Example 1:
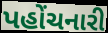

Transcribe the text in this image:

પહોંચનારી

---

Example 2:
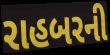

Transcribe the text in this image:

રાહબરની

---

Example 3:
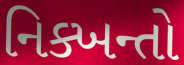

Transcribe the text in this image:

નિક્ખન્તો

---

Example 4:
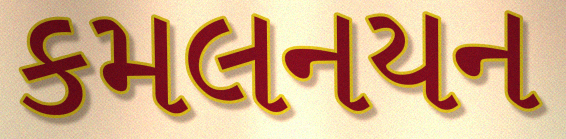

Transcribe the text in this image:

કમલનયન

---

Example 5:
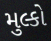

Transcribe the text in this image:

મુલ્કો